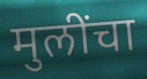
मुलींचा